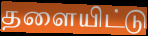
தளையிட்டு